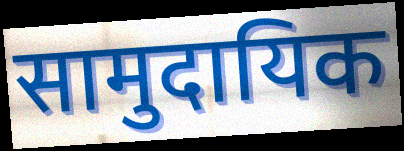
सामुदायिक